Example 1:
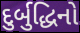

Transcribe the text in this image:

દુર્બુદ્ધિનો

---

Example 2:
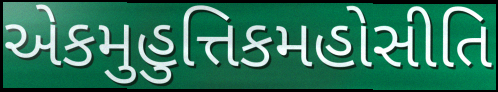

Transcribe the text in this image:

એકમુહુત્તિકમહોસીતિ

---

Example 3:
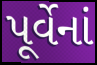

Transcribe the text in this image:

પૂર્વેનાં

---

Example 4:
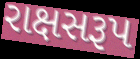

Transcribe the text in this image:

રાક્ષસરૂપ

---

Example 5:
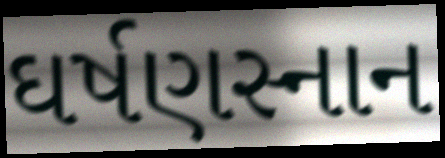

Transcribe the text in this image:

ઘર્ષણસ્નાન